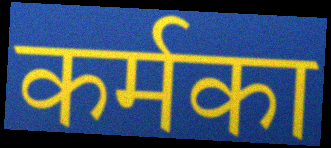
कर्मका